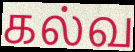
கல்வ